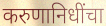
करुणानिधींचा